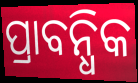
ପ୍ରାବନ୍ଧିକ